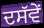
ਦਸੱਵੇਂ